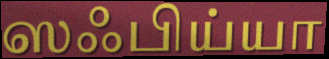
ஸஃபிய்யா